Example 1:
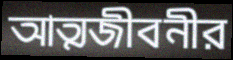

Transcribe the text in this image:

আত্মজীবনীর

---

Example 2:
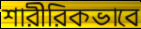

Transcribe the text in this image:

শারীরিকভাবে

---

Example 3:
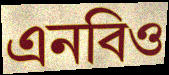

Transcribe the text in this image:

এনবিও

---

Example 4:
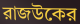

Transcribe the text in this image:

রাজউকের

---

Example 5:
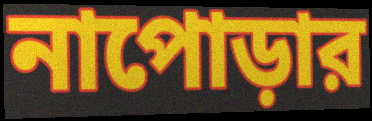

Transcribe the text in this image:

নাপোড়ার